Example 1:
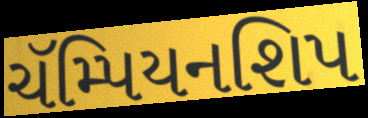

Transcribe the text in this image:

ચૅમ્પિયનશિપ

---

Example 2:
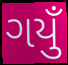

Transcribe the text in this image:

ગયુઁ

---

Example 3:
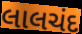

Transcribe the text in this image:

લાલચંદ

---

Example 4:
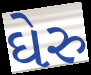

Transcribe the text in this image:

ઘેરુ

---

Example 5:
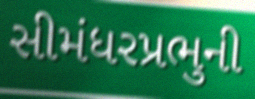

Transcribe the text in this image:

સીમંધરપ્રભુની